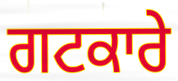
ਗਟਕਾਰੇ